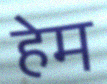
हेम